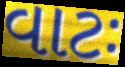
વાટઃ